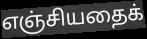
எஞ்சியதைக்